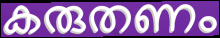
കരുതണം